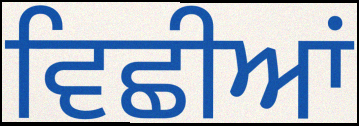
ਵਿਛੀਆਂ